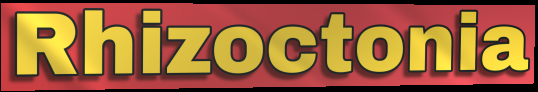
Rhizoctonia